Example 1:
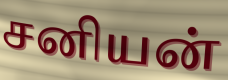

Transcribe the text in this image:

சனியன்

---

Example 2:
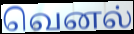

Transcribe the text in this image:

வெனல்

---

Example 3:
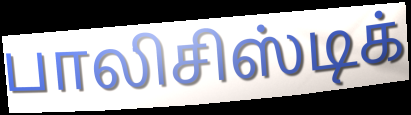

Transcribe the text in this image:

பாலிசிஸ்டிக்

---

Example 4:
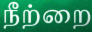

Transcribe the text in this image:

நீற்றை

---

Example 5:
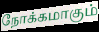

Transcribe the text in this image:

நோக்கமாகும்